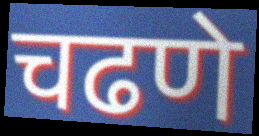
चढणे